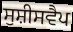
ਸੁਸ਼ੀਸਵੈਪ